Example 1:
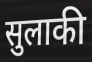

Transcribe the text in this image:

सुलाकी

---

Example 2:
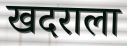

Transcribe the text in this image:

खदराला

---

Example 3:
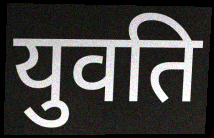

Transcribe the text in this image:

युवति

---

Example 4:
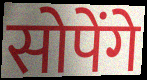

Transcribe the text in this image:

सोपेंगे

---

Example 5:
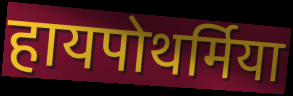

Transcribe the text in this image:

हायपोथर्मिया